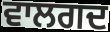
ਵਾਲਗਦ